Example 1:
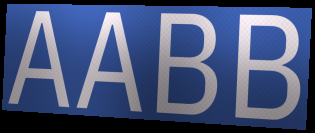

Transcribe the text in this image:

AABB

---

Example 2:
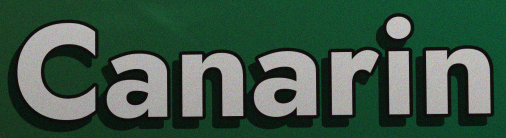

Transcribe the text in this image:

Canarin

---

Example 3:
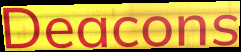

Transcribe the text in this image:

Deacons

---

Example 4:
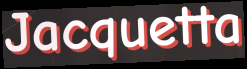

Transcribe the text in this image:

Jacquetta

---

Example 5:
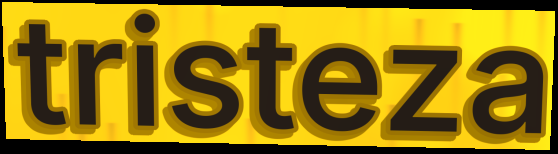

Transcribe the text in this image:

tristeza